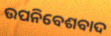
ଉପନିବେଶବାଦ